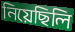
নিয়েছিলি